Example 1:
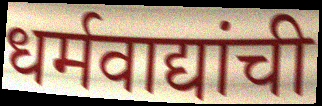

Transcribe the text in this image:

धर्मवाद्यांची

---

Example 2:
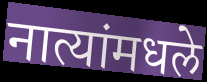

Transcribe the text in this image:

नात्यांमधले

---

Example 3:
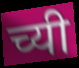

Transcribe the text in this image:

च्यी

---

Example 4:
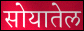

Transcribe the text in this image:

सोयातेल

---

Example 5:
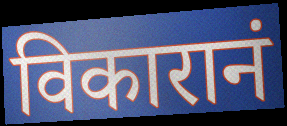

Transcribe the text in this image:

विकारानं